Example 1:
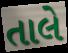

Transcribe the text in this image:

તાલે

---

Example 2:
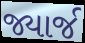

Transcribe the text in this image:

જ્યાર્જ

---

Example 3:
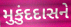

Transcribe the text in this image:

મુકુંદદાસને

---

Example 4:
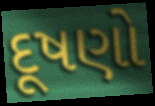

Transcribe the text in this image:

દૂષણો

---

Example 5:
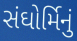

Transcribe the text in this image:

સંઘોર્મિનું